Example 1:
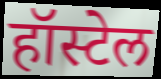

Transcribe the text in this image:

हॉस्टेल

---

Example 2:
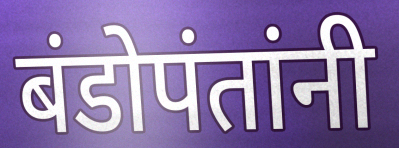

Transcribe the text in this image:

बंडोपंतांनी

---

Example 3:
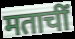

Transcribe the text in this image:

मताचीं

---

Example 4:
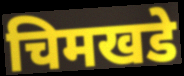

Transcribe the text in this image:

चिमखडे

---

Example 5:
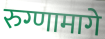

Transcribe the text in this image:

रुग्णामागे